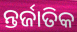
ନ୍ତର୍ଜାତିକ